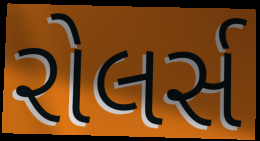
રોલર્સ